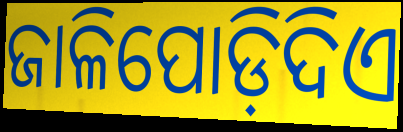
ଜାଳିପୋଡ଼ିଦିଏ